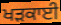
ਖੜਕਾਈ